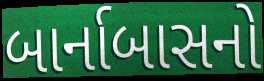
બાર્નાબાસનો